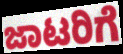
ಜಾಟರಿಗೆ